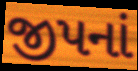
જીપનાં